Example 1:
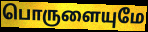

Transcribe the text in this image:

பொருளையுமே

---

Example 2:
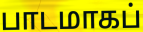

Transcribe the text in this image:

பாடமாகப்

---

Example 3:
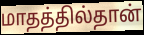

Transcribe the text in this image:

மாதத்தில்தான்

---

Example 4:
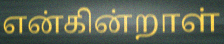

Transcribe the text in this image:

என்கின்றாள்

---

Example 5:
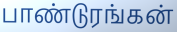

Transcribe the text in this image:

பாண்டுரங்கன்